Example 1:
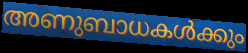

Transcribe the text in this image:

അണുബാധകൾക്കും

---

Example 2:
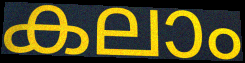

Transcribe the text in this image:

കലാം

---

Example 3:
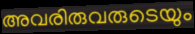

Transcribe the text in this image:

അവരിരുവരുടെയും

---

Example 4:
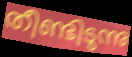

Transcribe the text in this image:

തീണ്ടിടുന്നു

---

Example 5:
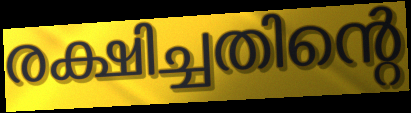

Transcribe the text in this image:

രക്ഷിച്ചതിന്റെ